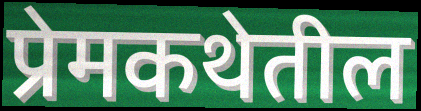
प्रेमकथेतील